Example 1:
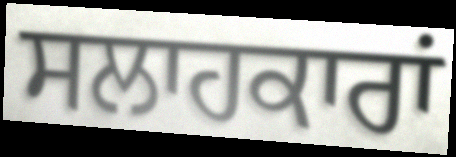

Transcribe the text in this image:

ਸਲਾਹਕਾਰਾਂ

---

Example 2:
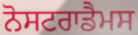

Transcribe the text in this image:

ਨੋਸਟਰਾਡੈਮਸ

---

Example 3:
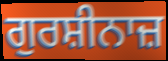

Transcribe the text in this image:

ਗੁਰਸ਼ੀਨਾਜ਼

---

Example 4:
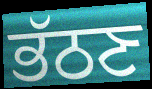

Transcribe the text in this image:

ਭੱਠਣ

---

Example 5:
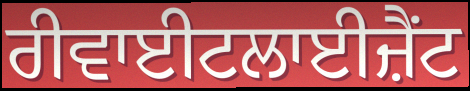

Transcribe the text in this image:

ਰੀਵਾਈਟਲਾਈਜ਼ੈਂਟ